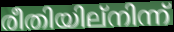
രീതിയില്നിന്ന്